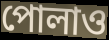
পোলাও